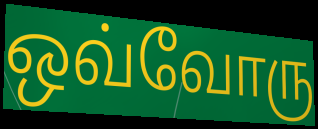
ஒவ்வோரு